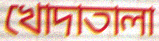
খোদাতালা